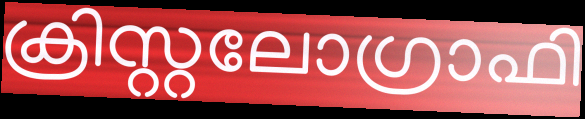
ക്രിസ്റ്റലോഗ്രാഫി